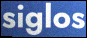
siglos